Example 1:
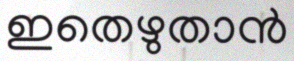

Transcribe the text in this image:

ഇതെഴുതാൻ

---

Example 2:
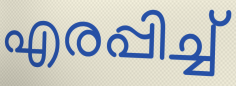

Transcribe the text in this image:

എരപ്പിച്ച്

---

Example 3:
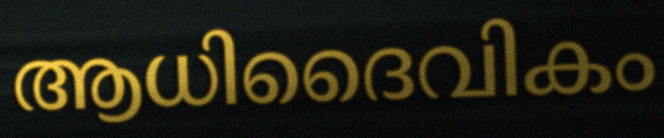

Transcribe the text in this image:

ആധിദൈവികം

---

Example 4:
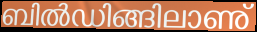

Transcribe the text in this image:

ബിൽഡിങ്ങിലാണു്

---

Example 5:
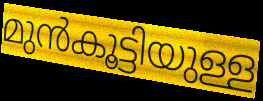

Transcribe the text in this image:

മുൻകൂട്ടിയുള്ള